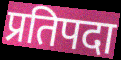
प्रतिपदा